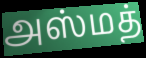
அஸ்மத்